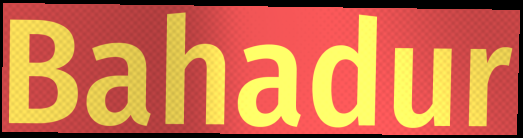
Bahadur